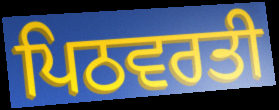
ਪਿਠਵਰਤੀ